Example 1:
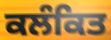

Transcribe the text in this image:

ਕਲੰਕਿਤ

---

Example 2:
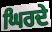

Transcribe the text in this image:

ਘਿਰਦੇ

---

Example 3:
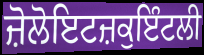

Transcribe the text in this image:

ਜ਼ੋਲੋਇਟਜ਼ਕੁਇੰਟਲੀ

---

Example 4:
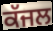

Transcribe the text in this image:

ਕੱਜਲ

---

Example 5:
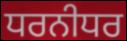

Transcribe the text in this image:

ਧਰਨੀਧਰ